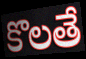
కొలతే